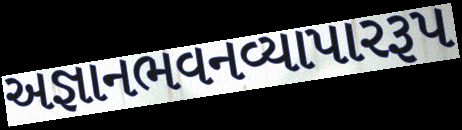
અજ્ઞાનભવનવ્યાપારરૂપ